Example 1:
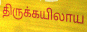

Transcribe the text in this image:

திருக்கயிலாய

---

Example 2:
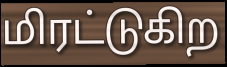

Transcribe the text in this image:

மிரட்டுகிற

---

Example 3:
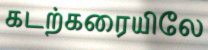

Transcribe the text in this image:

கடற்கரையிலே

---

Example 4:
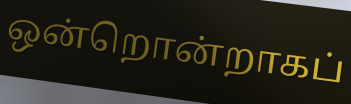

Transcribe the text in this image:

ஒன்றொன்றாகப்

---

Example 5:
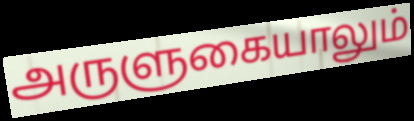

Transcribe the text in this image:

அருளுகையாலும்